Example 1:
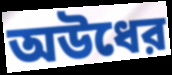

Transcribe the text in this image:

অউধের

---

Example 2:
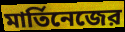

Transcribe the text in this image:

মার্তিনেজের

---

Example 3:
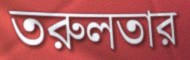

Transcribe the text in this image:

তরুলতার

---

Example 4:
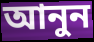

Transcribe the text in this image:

আনুন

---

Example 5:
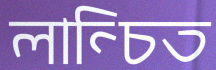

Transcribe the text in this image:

লান্চিত